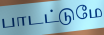
பாடட்டுமே